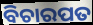
ବିଚାରପତ